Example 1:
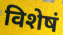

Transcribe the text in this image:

विशेषं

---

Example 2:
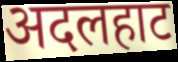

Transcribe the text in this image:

अदलहाट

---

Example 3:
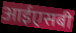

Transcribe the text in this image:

आईएसबी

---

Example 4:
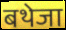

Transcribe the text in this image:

बथेजा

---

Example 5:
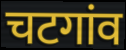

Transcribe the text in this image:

चटगांव